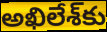
అఖిలేశ్‌కు